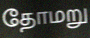
தோமறு